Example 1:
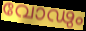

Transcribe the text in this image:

വോഢും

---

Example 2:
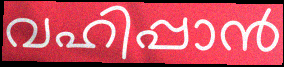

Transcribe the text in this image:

വഹിപ്പാൻ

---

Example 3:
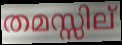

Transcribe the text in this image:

തമസ്സില്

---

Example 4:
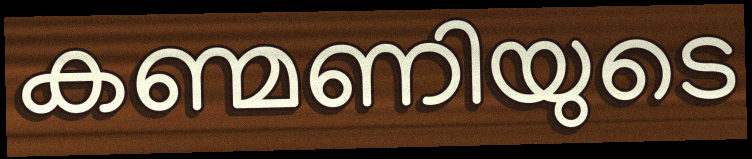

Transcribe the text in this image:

കണ്മണിയുടെ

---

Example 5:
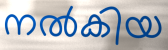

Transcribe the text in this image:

നൽകിയ